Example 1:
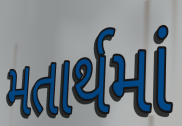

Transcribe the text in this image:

મતાર્થમાં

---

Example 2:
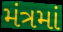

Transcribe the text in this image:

મંત્રમાં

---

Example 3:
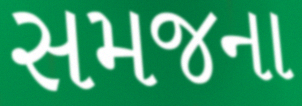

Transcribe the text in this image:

સમજના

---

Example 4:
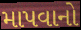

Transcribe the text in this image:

માપવાનો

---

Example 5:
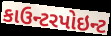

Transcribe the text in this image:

કાઉન્ટરપોઇન્ટ